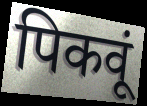
पिकवूं